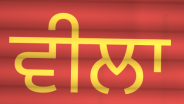
ਵੀਲਾ